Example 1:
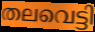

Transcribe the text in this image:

തലവെട്ടി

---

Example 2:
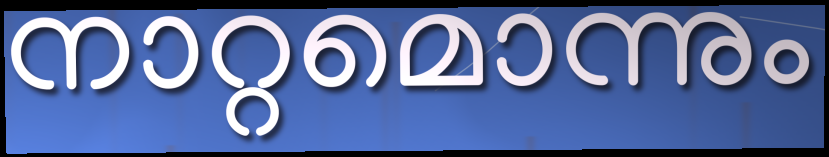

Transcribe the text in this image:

നാറ്റമൊന്നും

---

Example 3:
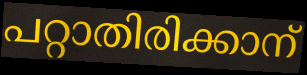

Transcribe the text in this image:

പറ്റാതിരിക്കാന്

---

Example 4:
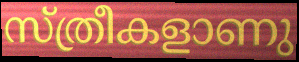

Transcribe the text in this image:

സ്ത്രീകളാണു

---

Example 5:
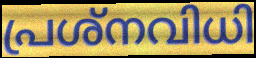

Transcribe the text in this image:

പ്രശ്നവിധി